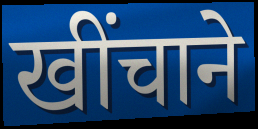
खींचाने